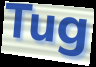
Tug